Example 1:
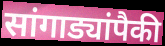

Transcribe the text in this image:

सांगाड्यांपैकी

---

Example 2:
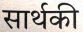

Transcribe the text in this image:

सार्थकी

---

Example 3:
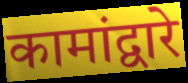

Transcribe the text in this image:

कामांद्वारे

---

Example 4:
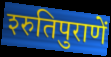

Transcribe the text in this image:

श्रुतिपुराणें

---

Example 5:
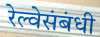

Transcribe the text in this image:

रेल्वेसंबंधी